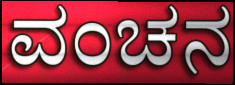
ವಂಚನ